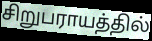
சிறுபராயத்தில்